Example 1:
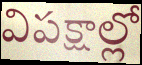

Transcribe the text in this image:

విపక్షాల్లో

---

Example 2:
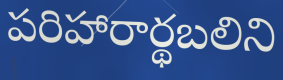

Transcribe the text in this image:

పరిహారార్థబలిని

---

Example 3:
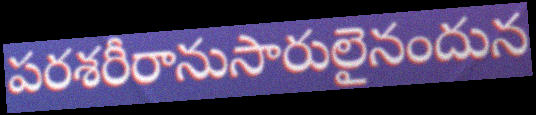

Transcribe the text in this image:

పరశరీరానుసారులైనందున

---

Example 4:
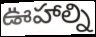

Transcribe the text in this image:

ఊహాల్ని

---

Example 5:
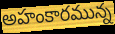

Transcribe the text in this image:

అహంకారమున్న